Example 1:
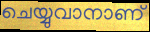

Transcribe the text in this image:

ചെയ്യുവാനാണ്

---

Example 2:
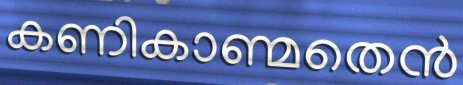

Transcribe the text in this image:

കണികാണ്മതെൻ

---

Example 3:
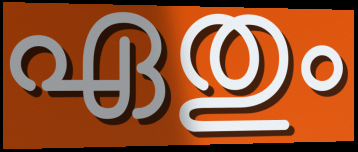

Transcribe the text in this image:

ഏതും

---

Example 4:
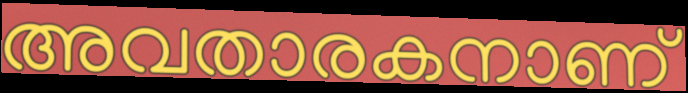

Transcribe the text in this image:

അവതാരകനാണ്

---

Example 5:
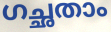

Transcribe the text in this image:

ഗച്ഛതാം